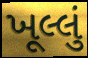
ખૂલ્લું